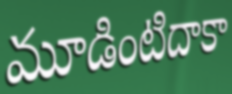
మూడింటిదాకా